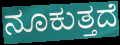
ನೂಕುತ್ತದೆ